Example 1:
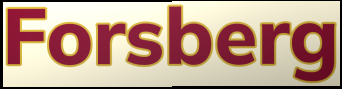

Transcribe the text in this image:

Forsberg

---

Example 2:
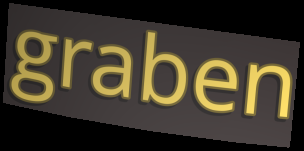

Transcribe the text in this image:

graben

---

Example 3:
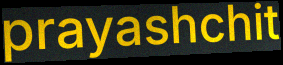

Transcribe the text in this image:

prayashchit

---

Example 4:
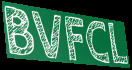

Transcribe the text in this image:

BVFCL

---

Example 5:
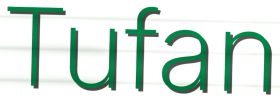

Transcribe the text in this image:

Tufan